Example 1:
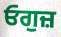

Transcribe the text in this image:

ਓਗੁਜ਼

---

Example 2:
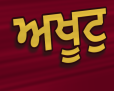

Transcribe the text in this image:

ਅਖੂਟੁ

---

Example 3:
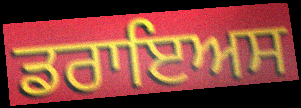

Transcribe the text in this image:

ਡਰਾਇਅਸ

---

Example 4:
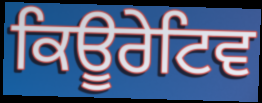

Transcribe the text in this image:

ਕਿਊਰੇਟਿਵ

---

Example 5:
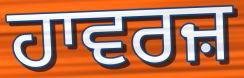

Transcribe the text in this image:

ਹਾਵਰਜ਼